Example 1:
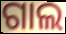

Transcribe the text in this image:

ଗାଲ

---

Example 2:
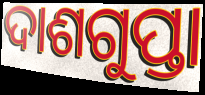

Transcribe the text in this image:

ଦାଶଗୁପ୍ତା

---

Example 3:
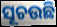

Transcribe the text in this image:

ସୂଚଉଛି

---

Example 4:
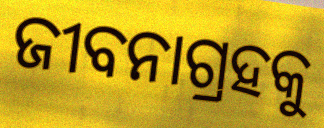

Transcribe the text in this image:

ଜୀବନାଗ୍ରହକୁ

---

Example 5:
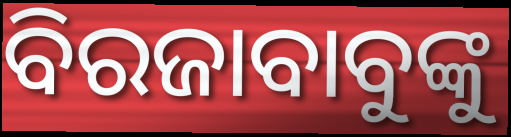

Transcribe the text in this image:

ବିରଜାବାବୁଙ୍କୁ